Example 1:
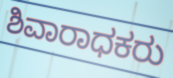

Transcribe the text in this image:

ಶಿವಾರಾಧಕರು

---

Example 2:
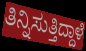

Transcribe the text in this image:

ತಿನ್ನಿಸುತ್ತಿದ್ದಾಳೆ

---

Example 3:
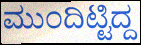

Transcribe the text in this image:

ಮುಂದಿಟ್ಟಿದ್ದ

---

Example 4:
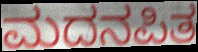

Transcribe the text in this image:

ಮದನಪಿತ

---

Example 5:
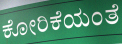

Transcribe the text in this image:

ಕೋರಿಕೆಯಂತೆ